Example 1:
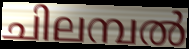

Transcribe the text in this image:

ചിലമ്പൽ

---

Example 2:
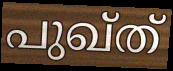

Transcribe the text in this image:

പുഖ്ത്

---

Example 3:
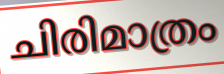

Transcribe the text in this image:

ചിരിമാത്രം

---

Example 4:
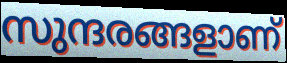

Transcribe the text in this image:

സുന്ദരങ്ങളാണ്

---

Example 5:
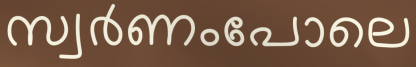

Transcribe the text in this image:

സ്വർണംപോലെ